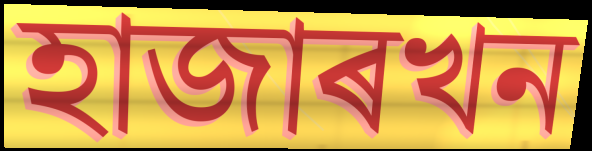
হাজাৰখন